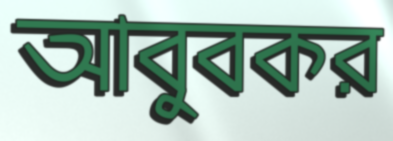
আবুবকর